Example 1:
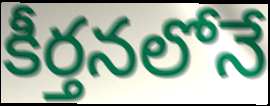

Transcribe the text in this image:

కీర్తనలోనే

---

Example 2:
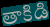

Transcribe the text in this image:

తాకిడి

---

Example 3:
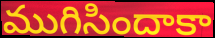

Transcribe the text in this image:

ముగిసిందాకా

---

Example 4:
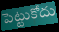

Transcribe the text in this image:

పెట్టుకోదు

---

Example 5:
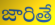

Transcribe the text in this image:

జారితే